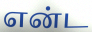
என்ட